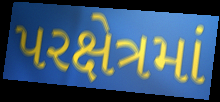
પરક્ષેત્રમાં